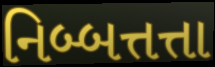
નિબ્બત્તત્તા